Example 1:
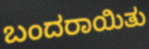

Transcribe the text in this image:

ಬಂದರಾಯಿತು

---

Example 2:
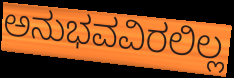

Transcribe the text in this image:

ಅನುಭವವಿರಲಿಲ್ಲ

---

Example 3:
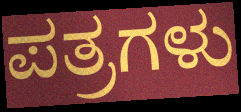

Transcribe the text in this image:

ಪತ್ರಗಳು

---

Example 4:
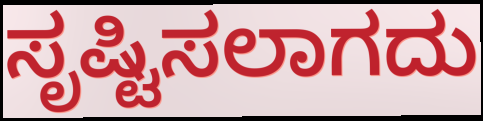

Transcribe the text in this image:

ಸೃಷ್ಟಿಸಲಾಗದು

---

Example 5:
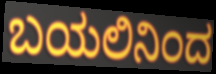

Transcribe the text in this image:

ಬಯಲಿನಿಂದ